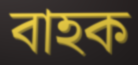
বাহক